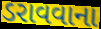
ડરાવવાના